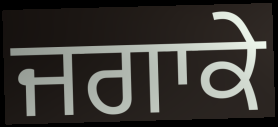
ਜਗਾਕੇ